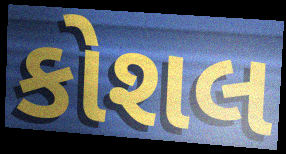
કોશલ